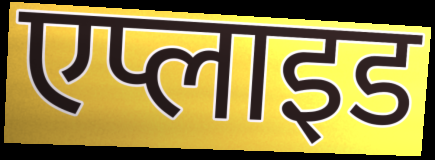
एप्लाइड